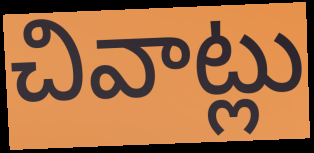
చివాట్లు